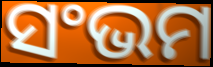
ସଂଭମ